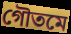
গৌতমে